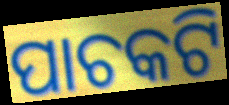
ପାଚକଟି